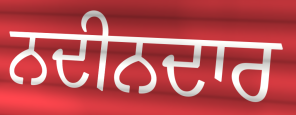
ਨਦੀਨਦਾਰ